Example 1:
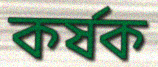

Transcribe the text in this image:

কর্ষক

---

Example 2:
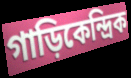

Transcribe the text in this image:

গাড়িকেন্দ্রিক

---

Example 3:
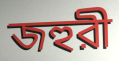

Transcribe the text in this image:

জহুরী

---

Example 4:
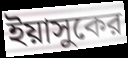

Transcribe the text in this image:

ইয়াসুকের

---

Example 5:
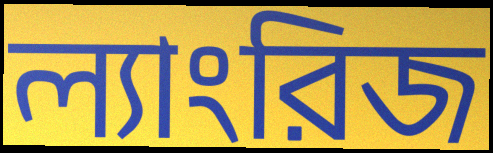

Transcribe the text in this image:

ল্যাংরিজ